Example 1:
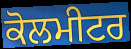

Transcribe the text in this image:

ਕੋਲਮੀਟਰ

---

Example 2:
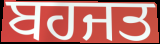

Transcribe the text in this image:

ਬਹਜਤ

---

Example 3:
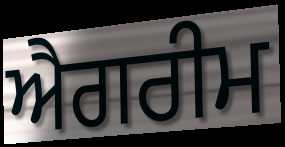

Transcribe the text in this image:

ਐਗਰੀਮ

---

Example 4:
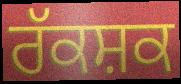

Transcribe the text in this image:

ਰੱਕਸ਼ਕ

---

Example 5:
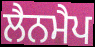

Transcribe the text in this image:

ਲੈਨਮੈਪ